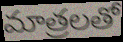
మాత్రలతో